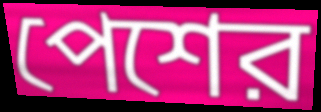
পেশের